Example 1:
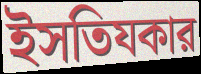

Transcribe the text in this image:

ইসতিযকার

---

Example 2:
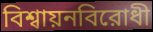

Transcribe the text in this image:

বিশ্বায়নবিরোধী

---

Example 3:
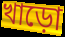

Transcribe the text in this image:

খাড়ো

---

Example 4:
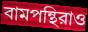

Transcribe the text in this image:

বামপন্থিরাও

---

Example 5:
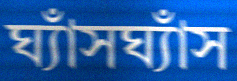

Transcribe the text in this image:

ঘ্যাঁসঘ্যাঁস